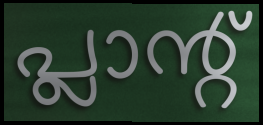
പ്ലാന്റ്